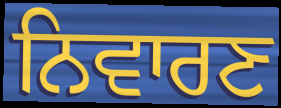
ਨਿਵਾਰਣ